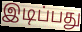
இடிப்பது